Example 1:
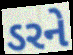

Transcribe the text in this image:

ડરને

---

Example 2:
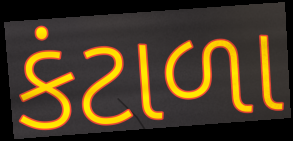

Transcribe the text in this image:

કંટાળા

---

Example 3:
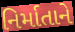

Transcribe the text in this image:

નિર્માતાને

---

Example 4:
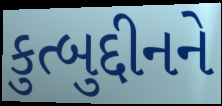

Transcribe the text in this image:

કુત્બુદ્દીનને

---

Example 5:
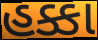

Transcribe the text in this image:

હક્કા